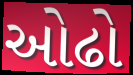
ઓઢો